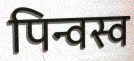
पिन्वस्व